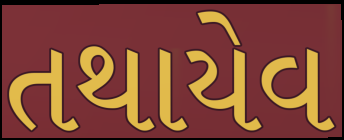
તથાયેવ